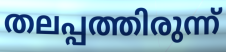
തലപ്പത്തിരുന്ന്